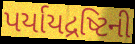
પર્યાયદ્રષ્ટિની